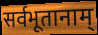
सर्वभूतानाम्